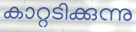
കാറ്റടിക്കുന്നു